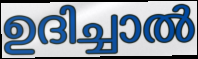
ഉദിച്ചാൽ